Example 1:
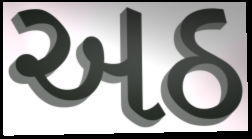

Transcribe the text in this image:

અઠ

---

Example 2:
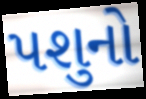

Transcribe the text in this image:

પશુનો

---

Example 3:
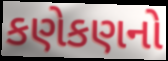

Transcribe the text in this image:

કણેકણનો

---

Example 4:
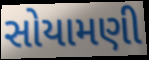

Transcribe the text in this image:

સોયામણી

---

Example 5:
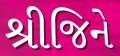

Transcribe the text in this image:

શ્રીજિને